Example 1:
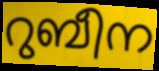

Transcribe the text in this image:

റുബീന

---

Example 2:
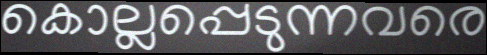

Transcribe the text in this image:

കൊല്ലപ്പെടുന്നവരെ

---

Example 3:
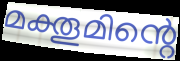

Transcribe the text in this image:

മക്തൂമിന്റെ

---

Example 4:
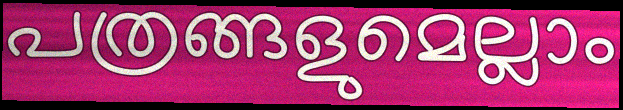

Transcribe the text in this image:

പത്രങ്ങളുമെല്ലാം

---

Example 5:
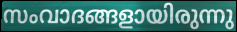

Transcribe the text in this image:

സംവാദങ്ങളായിരുന്നു